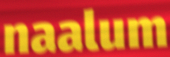
naalum